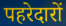
पहरेदारों